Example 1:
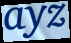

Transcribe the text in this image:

ayz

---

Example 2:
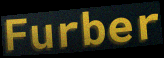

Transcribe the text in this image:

Furber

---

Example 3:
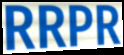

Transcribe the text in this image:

RRPR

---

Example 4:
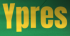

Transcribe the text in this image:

Ypres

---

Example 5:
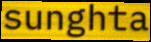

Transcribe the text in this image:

sunghta